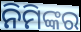
ନିମିଙ୍କର